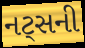
નટ્સની